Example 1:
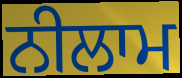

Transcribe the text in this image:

ਨੀਲਾਮ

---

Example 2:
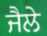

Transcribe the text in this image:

ਜੈਲੇ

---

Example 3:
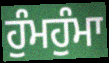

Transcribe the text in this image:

ਹੁੰਮਹੁੰਮਾ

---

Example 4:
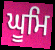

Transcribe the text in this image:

ਘੂਮਿ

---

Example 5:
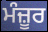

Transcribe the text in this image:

ਮੰਜ਼ੂਰ